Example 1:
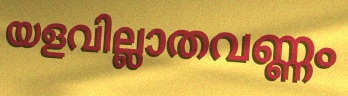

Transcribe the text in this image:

യളവില്ലാതവണ്ണം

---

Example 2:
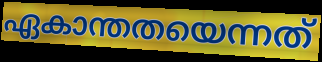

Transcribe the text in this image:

ഏകാന്തതയെന്നത്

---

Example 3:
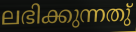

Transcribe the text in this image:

ലഭിക്കുന്നതു്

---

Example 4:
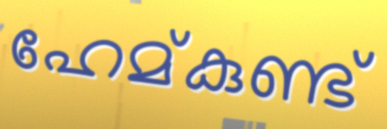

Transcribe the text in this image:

ഹേമ്കുണ്ട്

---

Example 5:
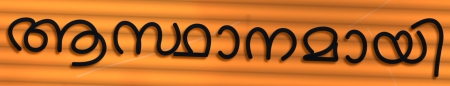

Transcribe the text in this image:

ആസ്ഥാനമായി